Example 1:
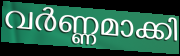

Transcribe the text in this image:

വർണ്ണമാക്കി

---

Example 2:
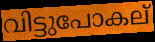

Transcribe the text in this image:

വിട്ടുപോകല്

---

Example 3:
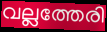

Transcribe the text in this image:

വല്ലത്തേരി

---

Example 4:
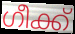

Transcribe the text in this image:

ഗീക്ക്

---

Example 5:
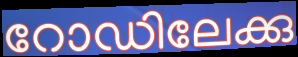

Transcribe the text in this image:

റോഡിലേക്കു